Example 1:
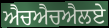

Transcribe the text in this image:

ਐਚਐਚਐਲਏ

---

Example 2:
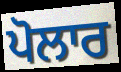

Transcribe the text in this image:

ਪੋਲਾਰ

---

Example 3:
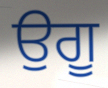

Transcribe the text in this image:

ਉਗੂ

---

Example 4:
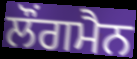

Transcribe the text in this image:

ਲੌਂਗਮੈਨ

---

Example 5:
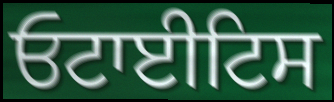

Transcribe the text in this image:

ਓਟਾਈਟਿਸ